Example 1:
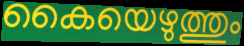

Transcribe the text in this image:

കൈയെഴുത്തും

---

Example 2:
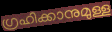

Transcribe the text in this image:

ഗ്രഹിക്കാനുമുള്ള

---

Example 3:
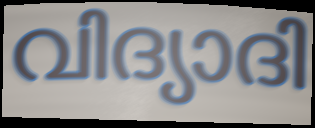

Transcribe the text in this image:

വിദ്യാദി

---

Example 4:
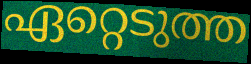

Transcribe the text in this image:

ഏറ്റെടുത്ത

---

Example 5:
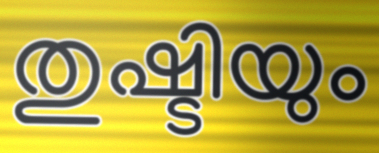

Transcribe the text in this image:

തുഷ്ടിയും